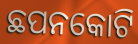
ଛପନକୋଟି